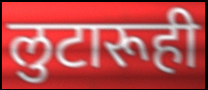
लुटारूही